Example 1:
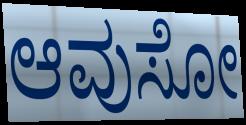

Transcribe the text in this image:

ಆವುಸೋ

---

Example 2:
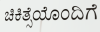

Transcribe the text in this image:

ಚಿಕಿತ್ಸೆಯೊಂದಿಗೆ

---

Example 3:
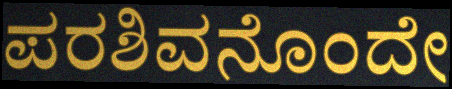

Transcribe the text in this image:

ಪರಶಿವನೊಂದೇ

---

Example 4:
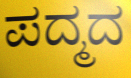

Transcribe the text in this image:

ಪದ್ಮದ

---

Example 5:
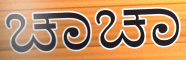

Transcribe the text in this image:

ಚಾಚಾ